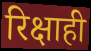
रिक्षाही